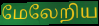
மேலேறிய